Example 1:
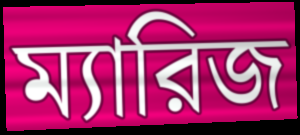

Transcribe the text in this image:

ম্যারিজ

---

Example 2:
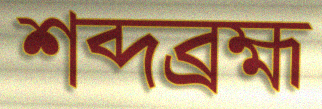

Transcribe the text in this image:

শব্দব্রহ্ম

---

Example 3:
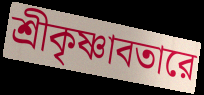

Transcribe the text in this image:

শ্রীকৃষ্ণাবতারে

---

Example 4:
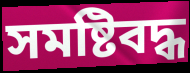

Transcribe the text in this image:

সমষ্টিবদ্ধ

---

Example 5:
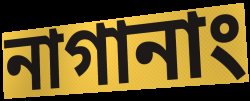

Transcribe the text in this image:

নাগানাং